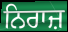
ਨਿਰਾਜ਼